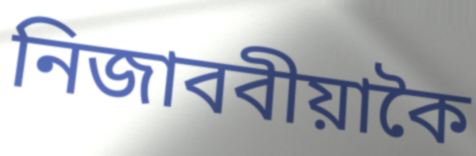
নিজাববীয়াকৈ